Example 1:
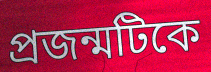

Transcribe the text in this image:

প্রজন্মটিকে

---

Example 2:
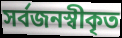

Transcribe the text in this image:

সর্বজনস্বীকৃত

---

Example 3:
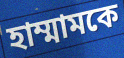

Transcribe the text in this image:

হাম্মামকে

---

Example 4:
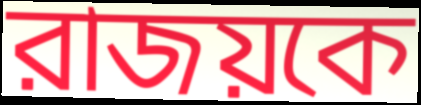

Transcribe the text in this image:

রাজয়কে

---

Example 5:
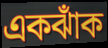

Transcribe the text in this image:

একঝাঁক